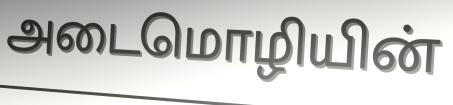
அடைமொழியின்